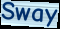
Sway